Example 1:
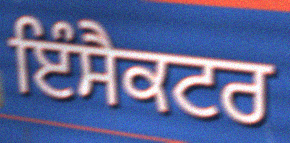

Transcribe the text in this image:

ਇੰਸੈਕਟਰ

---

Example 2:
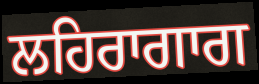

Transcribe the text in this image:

ਲਹਿਰਾਗਾਗ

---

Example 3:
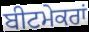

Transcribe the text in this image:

ਬੀਟਮੇਕਰਾਂ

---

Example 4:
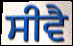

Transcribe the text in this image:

ਸੀਵੈ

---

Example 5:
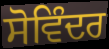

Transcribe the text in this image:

ਸੋਵਿੰਦਰ